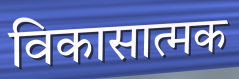
विकासात्मक